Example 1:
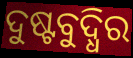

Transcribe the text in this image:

ଦୁଷ୍ଟବୁଦ୍ଧିର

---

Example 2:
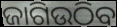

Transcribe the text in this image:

ଜାଗିଉଠିବ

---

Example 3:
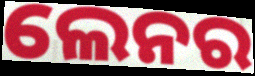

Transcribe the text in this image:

ଲେନର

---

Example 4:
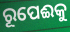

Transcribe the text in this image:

ରୂପେଈକୁ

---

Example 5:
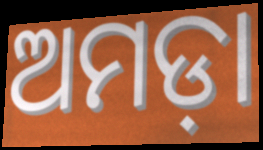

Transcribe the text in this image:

ଅମଡ଼ା